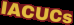
IACUCs